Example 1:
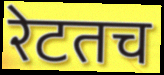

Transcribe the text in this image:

रेटतच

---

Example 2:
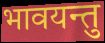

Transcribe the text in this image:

भावयन्तु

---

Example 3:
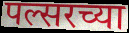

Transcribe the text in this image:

पल्सरच्या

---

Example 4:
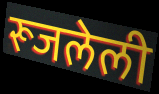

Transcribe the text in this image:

रूजलेली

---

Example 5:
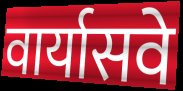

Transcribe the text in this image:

वार्यासवे